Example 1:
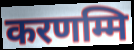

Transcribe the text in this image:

करणम्मि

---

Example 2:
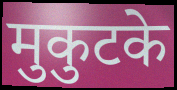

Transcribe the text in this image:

मुकुटके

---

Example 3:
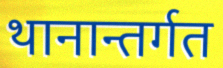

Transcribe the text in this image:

थानान्तर्गत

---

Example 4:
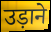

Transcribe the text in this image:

उड़ाने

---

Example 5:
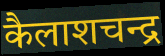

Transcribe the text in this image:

कैलाशचन्द्र